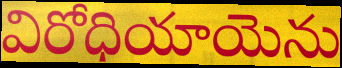
విరోధియాయెను